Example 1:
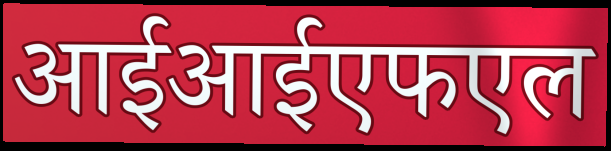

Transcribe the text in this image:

आईआईएफएल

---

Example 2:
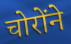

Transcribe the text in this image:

चोरोंने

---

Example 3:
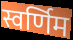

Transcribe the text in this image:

स्‍वर्णिम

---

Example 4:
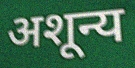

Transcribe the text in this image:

अशून्य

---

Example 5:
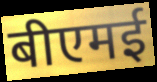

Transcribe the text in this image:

बीएमई